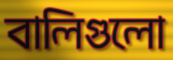
বালিগুলো